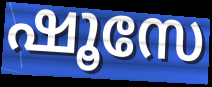
ഷൂസേ